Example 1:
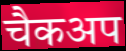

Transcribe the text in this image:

चैकअप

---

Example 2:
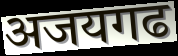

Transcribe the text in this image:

अजयगढ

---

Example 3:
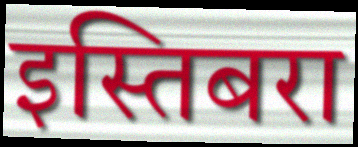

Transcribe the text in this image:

इस्तिबरा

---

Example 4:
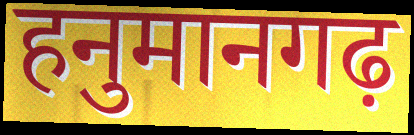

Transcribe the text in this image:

हनुमानगढ़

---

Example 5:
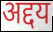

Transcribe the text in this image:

अद्दय